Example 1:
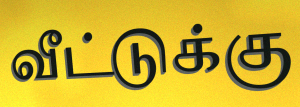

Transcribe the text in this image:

வீட்டுக்கு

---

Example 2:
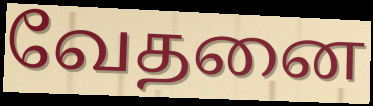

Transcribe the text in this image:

வேதனை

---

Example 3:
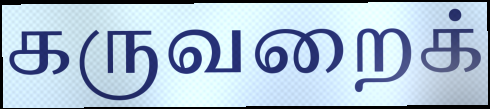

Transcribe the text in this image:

கருவறைக்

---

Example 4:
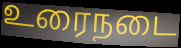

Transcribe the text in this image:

உரைநடை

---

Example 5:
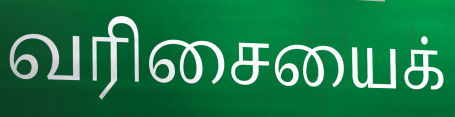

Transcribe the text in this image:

வரிசையைக்